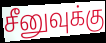
சீனுவுக்கு